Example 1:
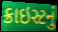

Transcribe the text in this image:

ક્રાઇસ્ટનું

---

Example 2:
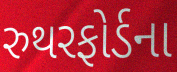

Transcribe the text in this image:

રુથરફોર્ડના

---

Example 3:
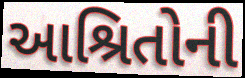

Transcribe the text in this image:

આશ્રિતોની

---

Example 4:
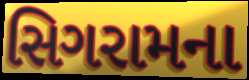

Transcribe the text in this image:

સિગરામના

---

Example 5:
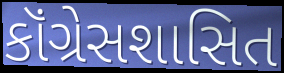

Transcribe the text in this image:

કૉંગ્રેસશાસિત